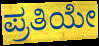
ಪ್ರತಿಯೇ